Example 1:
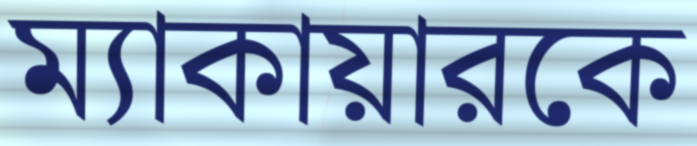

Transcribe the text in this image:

ম্যাকায়ারকে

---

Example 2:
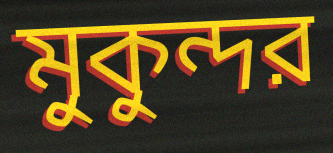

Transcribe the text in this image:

মুকুন্দর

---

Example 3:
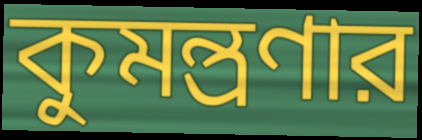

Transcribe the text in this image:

কুমন্ত্রণার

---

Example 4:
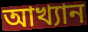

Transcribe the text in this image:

আখ্যান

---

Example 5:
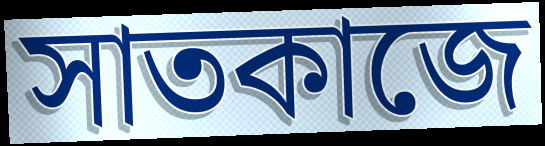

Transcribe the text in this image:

সাতকাজে